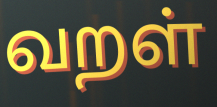
வறள்